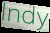
Indy